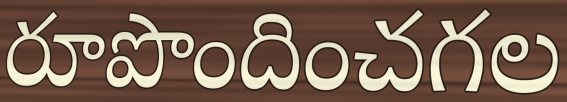
రూపొందించగల